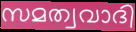
സമത്വവാദി